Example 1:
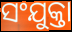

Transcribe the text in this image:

ସଂଯୁକ୍ତା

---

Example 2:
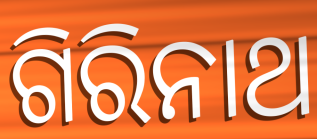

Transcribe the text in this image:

ଗିରିନାଥ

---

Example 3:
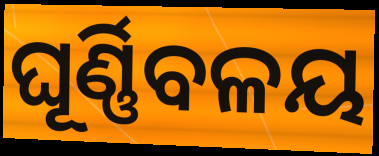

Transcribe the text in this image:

ଘୂର୍ଣ୍ଣିବଳୟ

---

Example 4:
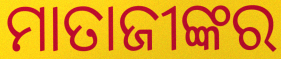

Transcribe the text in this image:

ମାତାଜୀଙ୍କର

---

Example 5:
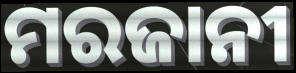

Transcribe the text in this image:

ମରଜାନୀ